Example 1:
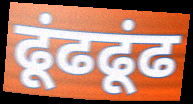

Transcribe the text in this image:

ढूंढढूंढ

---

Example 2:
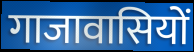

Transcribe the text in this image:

गाजावासियों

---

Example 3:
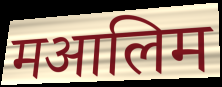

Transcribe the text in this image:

मआलिम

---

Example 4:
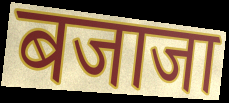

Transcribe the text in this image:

बजाजा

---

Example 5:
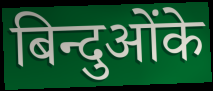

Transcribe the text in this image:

बिन्दुओंके